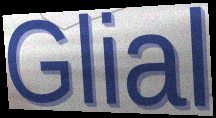
Glial